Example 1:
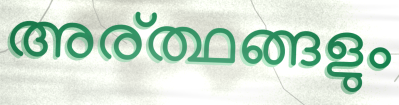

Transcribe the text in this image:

അര്ത്ഥങ്ങളും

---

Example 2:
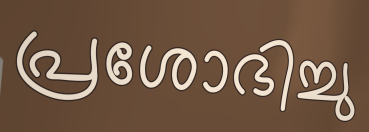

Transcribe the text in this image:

പ്രശോഭിച്ചു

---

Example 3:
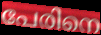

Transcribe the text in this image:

പേരിനെ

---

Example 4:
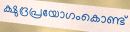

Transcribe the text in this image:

ക്ഷുദ്രപ്രയോഗംകൊണ്ട്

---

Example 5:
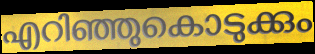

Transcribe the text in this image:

എറിഞ്ഞുകൊടുക്കും